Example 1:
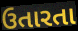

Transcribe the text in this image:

ઉતારતા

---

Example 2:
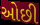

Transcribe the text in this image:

ઓછી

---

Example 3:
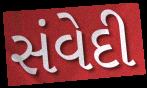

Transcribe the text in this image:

સંવેદી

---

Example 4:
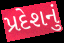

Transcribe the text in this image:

પ્રદેશનું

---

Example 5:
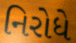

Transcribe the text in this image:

નિરોધે